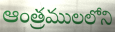
ఆంత్రములలోని